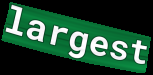
largest